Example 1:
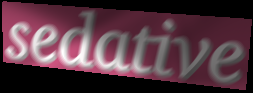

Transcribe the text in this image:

sedative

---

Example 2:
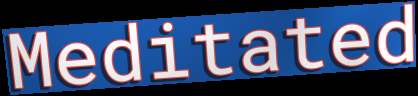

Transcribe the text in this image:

Meditated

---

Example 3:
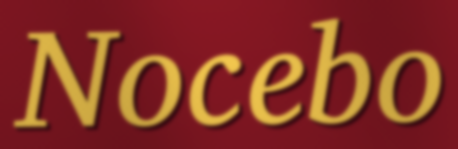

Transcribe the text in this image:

Nocebo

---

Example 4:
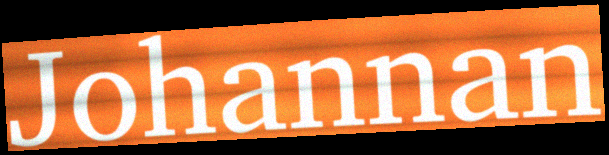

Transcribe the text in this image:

Johannan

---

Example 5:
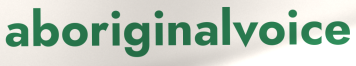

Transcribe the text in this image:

aboriginalvoice